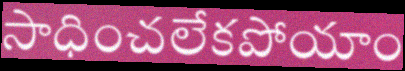
సాధించలేకపోయాం